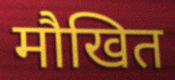
मौखित